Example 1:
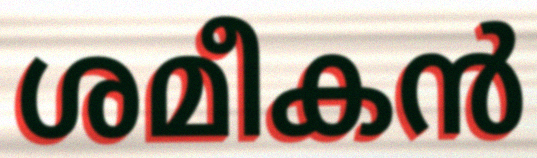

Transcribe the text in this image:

ശമീകൻ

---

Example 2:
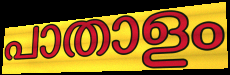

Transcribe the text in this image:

പാതാളം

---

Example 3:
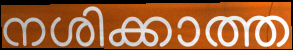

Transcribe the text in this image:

നശിക്കാത്ത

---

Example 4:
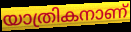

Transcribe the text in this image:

യാത്രികനാണ്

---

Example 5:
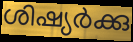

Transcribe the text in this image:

ശിഷ്യർക്കു